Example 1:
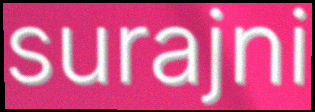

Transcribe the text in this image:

surajni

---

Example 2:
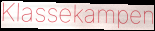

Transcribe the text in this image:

Klassekampen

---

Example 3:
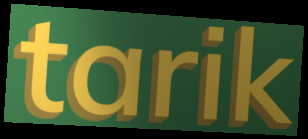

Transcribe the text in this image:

tarik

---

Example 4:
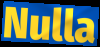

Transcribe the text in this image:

Nulla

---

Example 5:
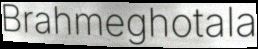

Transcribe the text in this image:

Brahmeghotala